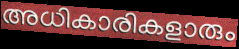
അധികാരികളാരും